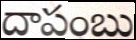
దాపంబు